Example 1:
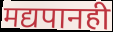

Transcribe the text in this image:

मद्यपानही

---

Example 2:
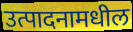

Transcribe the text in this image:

उत्पादनामधील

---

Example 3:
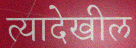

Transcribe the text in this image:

त्यादेखील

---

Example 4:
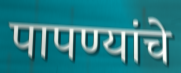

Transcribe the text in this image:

पापण्यांचे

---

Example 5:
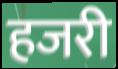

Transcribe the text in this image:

हजरी